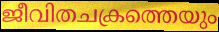
ജീവിതചക്രത്തെയും